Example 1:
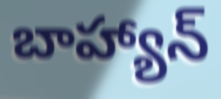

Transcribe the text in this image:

బాహ్యాన్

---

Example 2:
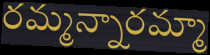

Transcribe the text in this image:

రమ్మన్నారమ్మా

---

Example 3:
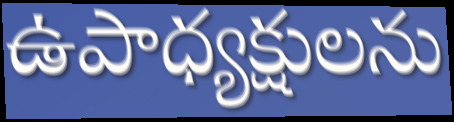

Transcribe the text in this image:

ఉపాధ్యక్షులను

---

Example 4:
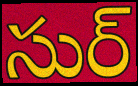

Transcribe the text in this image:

సుర్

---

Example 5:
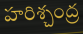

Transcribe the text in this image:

హరిశ్చంద్ర